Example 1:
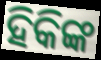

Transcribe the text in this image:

ହିକିଙ୍କ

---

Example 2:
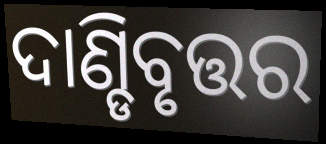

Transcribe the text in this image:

ଦାଣ୍ଡିବୃତ୍ତର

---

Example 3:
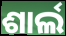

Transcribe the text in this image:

ଶାର୍ଲ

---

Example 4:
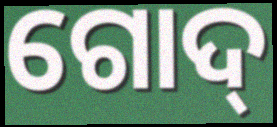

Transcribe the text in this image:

ଗୋଦ୍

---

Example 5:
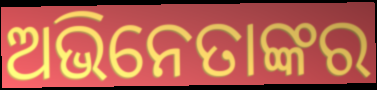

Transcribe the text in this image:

ଅଭିନେତାଙ୍କର